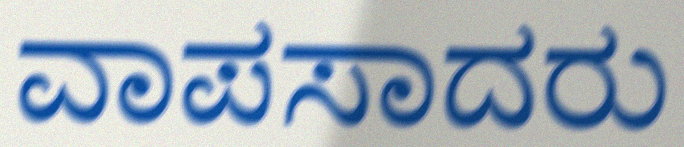
ವಾಪಸಾದರು